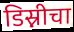
डिस्नीचा